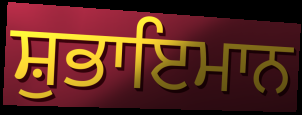
ਸ਼ੁਭਾਇਮਾਨ